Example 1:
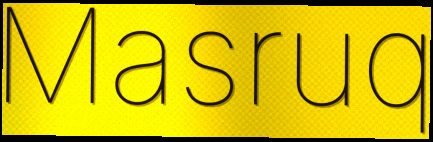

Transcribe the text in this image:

Masruq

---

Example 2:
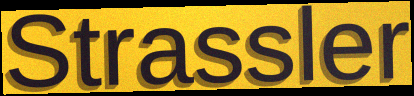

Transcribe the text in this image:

Strassler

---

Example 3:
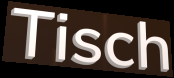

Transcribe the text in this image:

Tisch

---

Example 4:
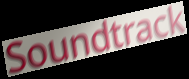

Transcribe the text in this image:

Soundtrack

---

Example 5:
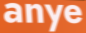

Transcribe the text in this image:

anye